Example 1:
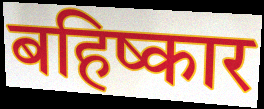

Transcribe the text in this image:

बहिष्‍कार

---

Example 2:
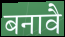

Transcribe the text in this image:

बनावै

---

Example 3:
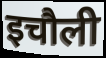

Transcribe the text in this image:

इचौली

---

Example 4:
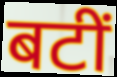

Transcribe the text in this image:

बटीं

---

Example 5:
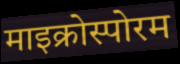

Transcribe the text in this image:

माइक्रोस्पोरम